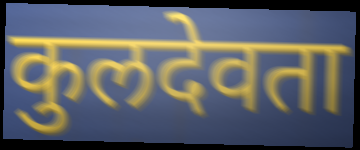
कुलदेवता